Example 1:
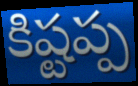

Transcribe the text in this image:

కిష్టప్ప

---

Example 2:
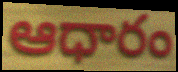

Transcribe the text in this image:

ఆధారం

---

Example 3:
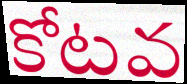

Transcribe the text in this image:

కోటవ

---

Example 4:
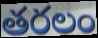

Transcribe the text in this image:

తరలం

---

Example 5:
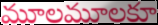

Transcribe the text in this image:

మూలమూలకూ